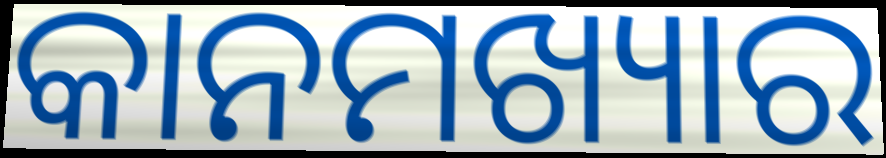
କାନମଖ୍ୟାର